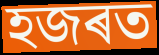
হজৰত